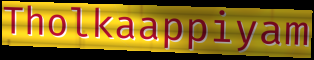
Tholkaappiyam